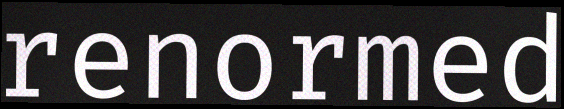
renormed